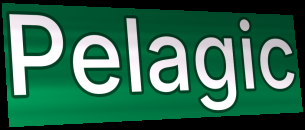
Pelagic